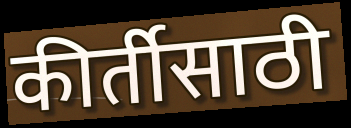
कीर्तीसाठी